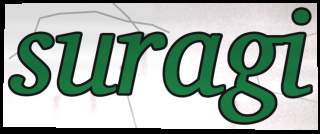
suragi